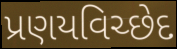
પ્રણયવિચ્છેદ